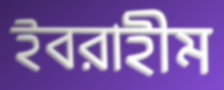
ইবরাহীম